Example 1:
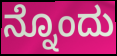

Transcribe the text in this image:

ನ್ನೊಂದು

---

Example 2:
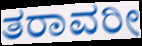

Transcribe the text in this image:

ತರಾವರೀ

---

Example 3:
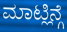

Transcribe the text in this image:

ಮಾಟ್ಲಿನ್ಗೆ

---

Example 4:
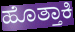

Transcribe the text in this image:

ಹೊತ್ತಾಕಿ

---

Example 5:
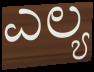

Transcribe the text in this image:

ಎಲ್ಯ